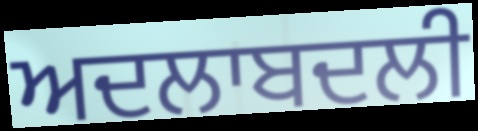
ਅਦਲਾਬਦਲੀ